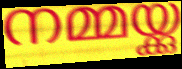
നമ്മയ്ക്കു